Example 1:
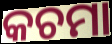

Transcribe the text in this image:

କଚମା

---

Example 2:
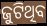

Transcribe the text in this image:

ଜୁଟିଥିବ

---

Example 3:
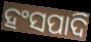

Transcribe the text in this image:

ହଂସପାଦି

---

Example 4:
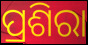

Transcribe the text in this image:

ପ୍ରଶିରା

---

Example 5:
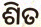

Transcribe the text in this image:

ଶିତ